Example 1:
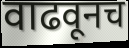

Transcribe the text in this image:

वाढवूनच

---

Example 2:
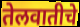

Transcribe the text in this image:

तेलवातीचे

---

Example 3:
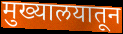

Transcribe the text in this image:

मुख्यालयातून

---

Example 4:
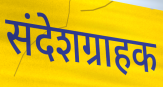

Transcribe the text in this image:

संदेशग्राहक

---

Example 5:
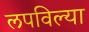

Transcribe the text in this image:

लपविल्या